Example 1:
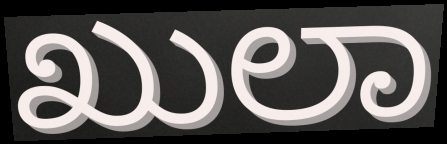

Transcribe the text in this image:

ಖುಲಾ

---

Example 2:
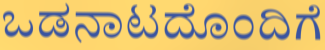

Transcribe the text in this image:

ಒಡನಾಟದೊಂದಿಗೆ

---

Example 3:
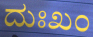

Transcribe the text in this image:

ದುಃಖಂ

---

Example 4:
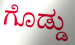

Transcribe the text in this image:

ಗೊಡ್ಡು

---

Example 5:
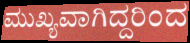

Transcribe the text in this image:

ಮುಖ್ಯವಾಗಿದ್ದರಿಂದ